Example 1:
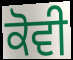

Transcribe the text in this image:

ਕੋਵੀ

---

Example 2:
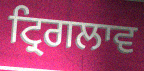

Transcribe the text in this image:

ਟ੍ਰਿਗਲਾਵ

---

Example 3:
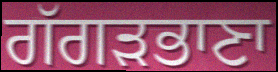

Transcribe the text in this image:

ਗੱਗੜਭਾਣਾ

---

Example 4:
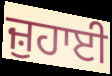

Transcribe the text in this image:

ਜ਼ੁਹਾਈ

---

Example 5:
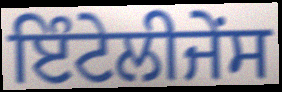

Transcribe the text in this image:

ਇੰਟੇਲੀਜੇੰਸ